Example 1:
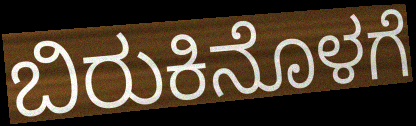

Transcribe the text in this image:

ಬಿರುಕಿನೊಳಗೆ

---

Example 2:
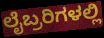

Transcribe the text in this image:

ಲೈಬ್ರರಿಗಳಲ್ಲಿ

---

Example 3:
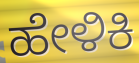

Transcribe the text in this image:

ಹೇಳಿಕಿ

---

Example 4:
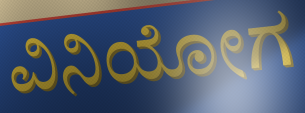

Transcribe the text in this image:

ವಿನಿಯೋಗ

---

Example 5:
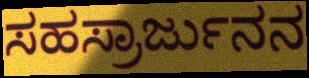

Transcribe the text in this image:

ಸಹಸ್ರಾರ್ಜುನನ